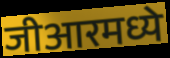
जीआरमध्ये